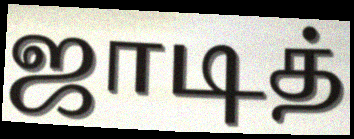
ஜாடித்